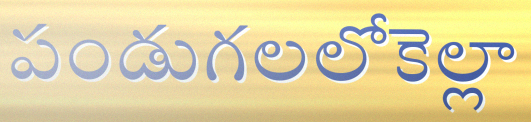
పండుగలలోకెల్లా